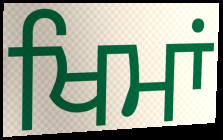
ਖਿਮਾਂ